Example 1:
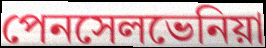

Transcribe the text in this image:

পেনসেলভেনিয়া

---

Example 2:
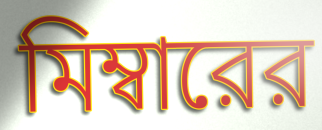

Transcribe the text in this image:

মিম্বারের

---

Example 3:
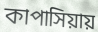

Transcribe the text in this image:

কাপাসিয়ায়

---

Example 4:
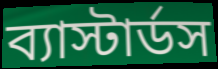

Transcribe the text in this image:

ব্যাস্টার্ডস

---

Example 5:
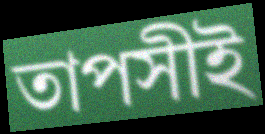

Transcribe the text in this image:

তাপসীই